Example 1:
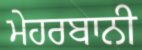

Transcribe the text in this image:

ਮੇਹਰਬਾਨੀ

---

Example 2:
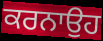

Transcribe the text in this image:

ਕਰਨਾਉਹ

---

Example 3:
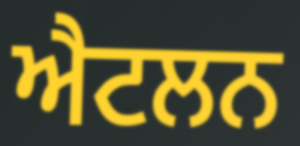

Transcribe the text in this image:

ਐਟਲਨ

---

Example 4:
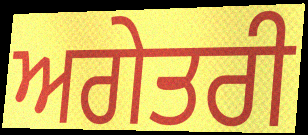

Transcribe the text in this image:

ਅਗੇਤਰੀ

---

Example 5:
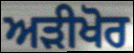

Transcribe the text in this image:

ਅੜੀਖੋਰ